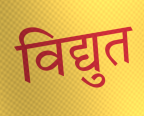
विद्युत